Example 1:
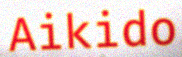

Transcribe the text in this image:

Aikido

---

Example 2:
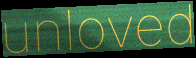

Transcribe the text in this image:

unloved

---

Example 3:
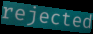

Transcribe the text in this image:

rejected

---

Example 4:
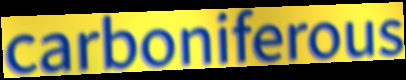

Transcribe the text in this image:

carboniferous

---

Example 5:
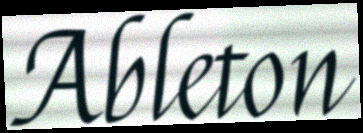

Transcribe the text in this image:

Ableton